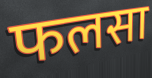
फलसा